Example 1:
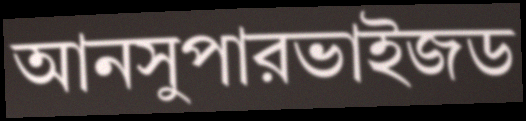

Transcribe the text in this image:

আনসুপারভাইজড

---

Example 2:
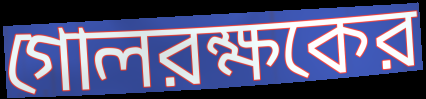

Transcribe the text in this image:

গোলরক্ষকের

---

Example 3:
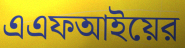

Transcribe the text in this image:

এএফআইয়ের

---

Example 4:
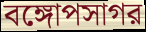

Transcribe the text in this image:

বঙ্গোপসাগর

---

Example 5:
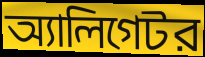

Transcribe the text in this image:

অ্যালিগেটর